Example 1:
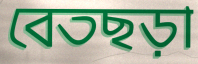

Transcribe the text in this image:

বেতছড়া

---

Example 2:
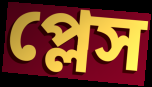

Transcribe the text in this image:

প্লেস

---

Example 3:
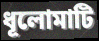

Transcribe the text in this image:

ধূলোমাটি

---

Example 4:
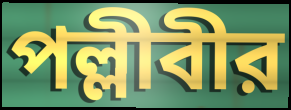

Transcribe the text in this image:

পল্লীবীর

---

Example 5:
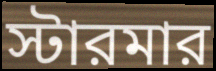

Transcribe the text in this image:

স্টারমার